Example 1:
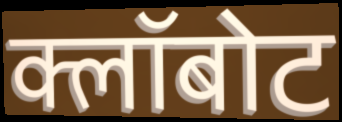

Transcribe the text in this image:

क्लॉबोट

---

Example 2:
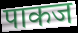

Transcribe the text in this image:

पाकज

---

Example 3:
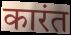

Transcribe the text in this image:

कारंत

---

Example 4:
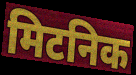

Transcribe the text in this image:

मिटनिक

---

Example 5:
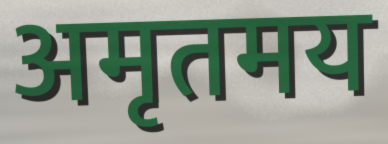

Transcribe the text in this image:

अमृतमय